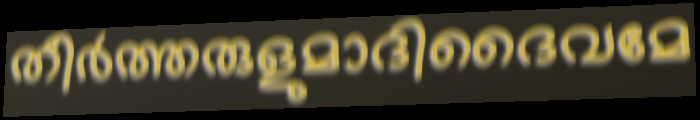
തീർത്തരുളുമാദിദൈവമേ